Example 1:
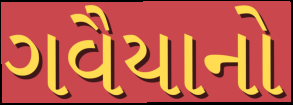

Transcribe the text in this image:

ગવૈયાનો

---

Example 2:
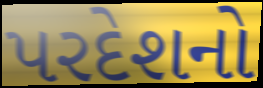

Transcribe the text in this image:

પરદેશનો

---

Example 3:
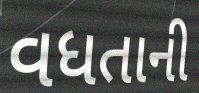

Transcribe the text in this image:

વધતાની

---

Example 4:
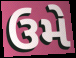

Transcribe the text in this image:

ઉમે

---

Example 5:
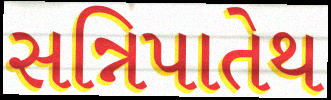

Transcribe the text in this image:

સન્નિપાતેથ